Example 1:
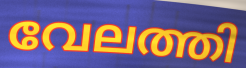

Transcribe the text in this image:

വേലത്തി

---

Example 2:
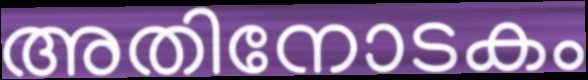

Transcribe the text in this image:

അതിനോടകം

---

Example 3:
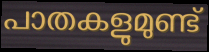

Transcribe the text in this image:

പാതകളുമുണ്ട്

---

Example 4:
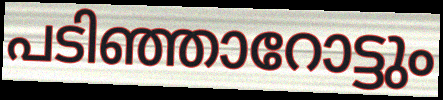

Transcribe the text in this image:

പടിഞ്ഞാറോട്ടും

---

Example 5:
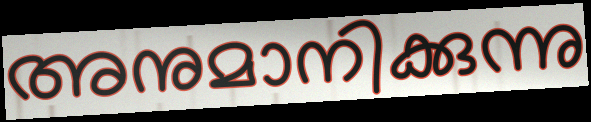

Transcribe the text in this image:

അനുമാനിക്കുന്നു